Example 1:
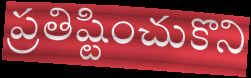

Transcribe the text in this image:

ప్రతిష్టించుకొని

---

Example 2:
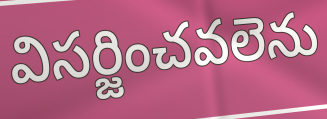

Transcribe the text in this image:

విసర్జించవలెను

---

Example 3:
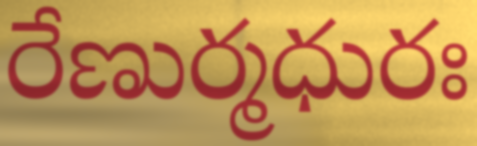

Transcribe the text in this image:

రేణుర్మధురః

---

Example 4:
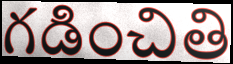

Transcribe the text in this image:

గడించితి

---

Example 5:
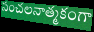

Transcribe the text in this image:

సంచలనాత్మకంగా